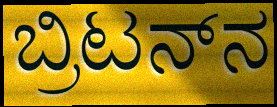
ಬ್ರಿಟನ್‌ನ